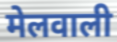
मेलवाली